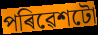
পৰিৱেশটো